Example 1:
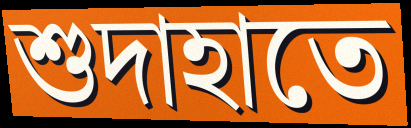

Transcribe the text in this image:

শুদাহাতে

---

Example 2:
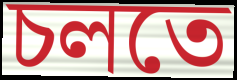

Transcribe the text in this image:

চলতে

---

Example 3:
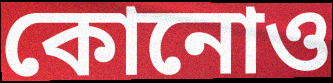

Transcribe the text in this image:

কোনোও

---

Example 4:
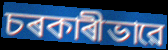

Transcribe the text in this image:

চৰকাৰীভাৱে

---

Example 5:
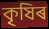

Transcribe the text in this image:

কৃষিৰ